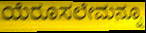
ಯೆರೂಸಲೇಮನ್ನೂ